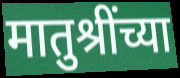
मातुश्रींच्या